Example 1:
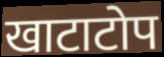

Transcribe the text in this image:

खाटाटोप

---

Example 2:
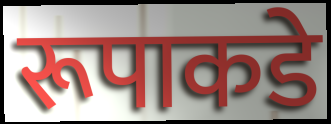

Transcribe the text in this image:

रूपाकडे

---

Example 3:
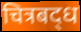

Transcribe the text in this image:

चित्रबद्ध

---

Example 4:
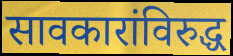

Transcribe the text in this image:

सावकारांविरुद्ध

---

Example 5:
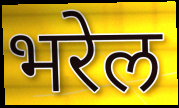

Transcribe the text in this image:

भरेल